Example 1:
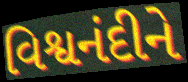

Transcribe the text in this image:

વિશ્વનંદીને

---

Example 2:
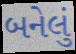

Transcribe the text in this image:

બનેલું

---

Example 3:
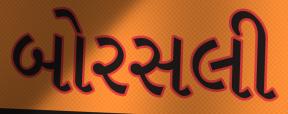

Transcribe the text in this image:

બોરસલી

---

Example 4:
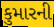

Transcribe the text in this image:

કુમારની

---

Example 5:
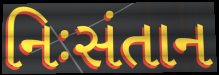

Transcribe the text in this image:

નિઃસંતાન